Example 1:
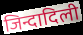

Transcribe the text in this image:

जिन्दादिली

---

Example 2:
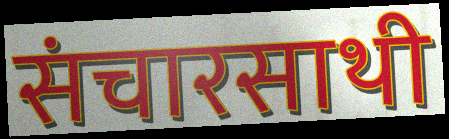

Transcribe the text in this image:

संचारसाथी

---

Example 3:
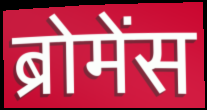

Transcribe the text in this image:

ब्रोमेंस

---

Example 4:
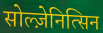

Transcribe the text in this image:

सोल्ज़ेनित्सिन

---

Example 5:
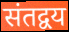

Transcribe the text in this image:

संतद्वय